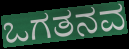
ಒಗತನವ